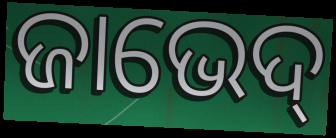
ଜାଭେଦ୍